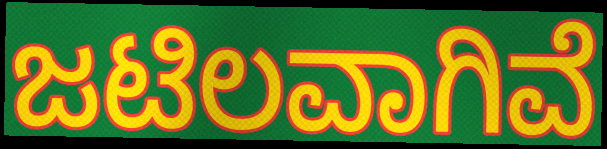
ಜಟಿಲವಾಗಿವೆ